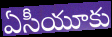
ఏసీయూకు